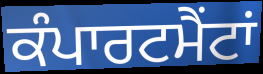
ਕੰਪਾਰਟਮੈਂਟਾਂ